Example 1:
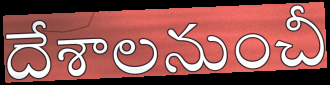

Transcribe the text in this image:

దేశాలనుంచీ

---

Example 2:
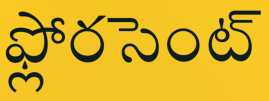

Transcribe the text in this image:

ఫ్లోరసెంట్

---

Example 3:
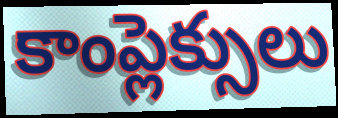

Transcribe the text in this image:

కాంప్లెక్సులు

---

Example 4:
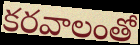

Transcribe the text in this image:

కరవాలంతో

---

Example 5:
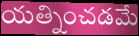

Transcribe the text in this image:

యత్నించడమే